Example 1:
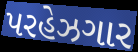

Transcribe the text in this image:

પરહેઝગાર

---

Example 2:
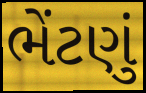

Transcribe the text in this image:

ભેંટણું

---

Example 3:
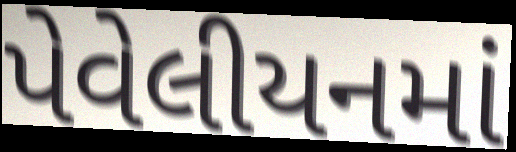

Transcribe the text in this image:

પેવેલીયનમાં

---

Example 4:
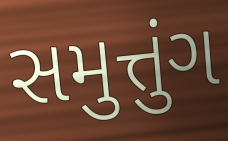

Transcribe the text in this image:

સમુત્તુંગ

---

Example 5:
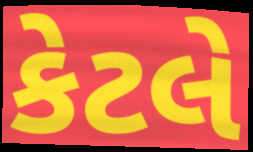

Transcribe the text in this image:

કેટલે